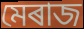
মেৰাজ